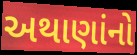
અથાણાંનો